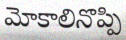
మోకాలినొప్పి